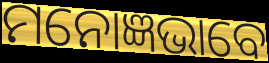
ମନୋଜ୍ଞଭାବେ